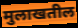
मुलाखतील